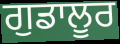
ਗੁਡਾਲੂਰ